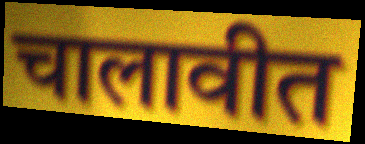
चालावीत